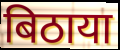
बिठाया